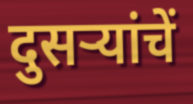
दुसऱ्यांचें